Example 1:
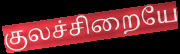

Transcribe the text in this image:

குலச்சிறையே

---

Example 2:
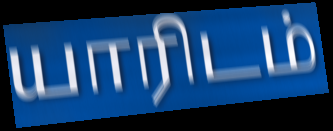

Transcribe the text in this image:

யாரிடம்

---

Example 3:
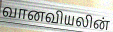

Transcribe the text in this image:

வானவியலின்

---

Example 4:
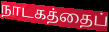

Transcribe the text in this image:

நாடகத்தைப்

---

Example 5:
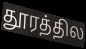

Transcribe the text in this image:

தூரத்தில